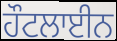
ਹੌਟਲਾਈਨ